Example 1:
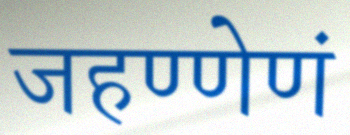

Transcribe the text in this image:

जहण्णेणं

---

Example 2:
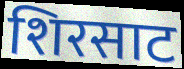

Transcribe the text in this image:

शिरसाट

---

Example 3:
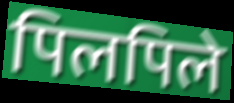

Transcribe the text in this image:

पिलपिले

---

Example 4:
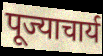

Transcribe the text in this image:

पूज्याचार्य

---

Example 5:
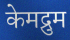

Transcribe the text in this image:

केमद्रुम